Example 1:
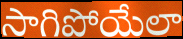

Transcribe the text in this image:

సాగిపోయేలా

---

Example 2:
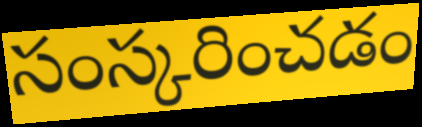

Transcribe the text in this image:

సంస్కరించడం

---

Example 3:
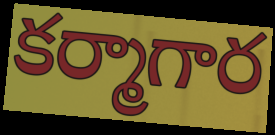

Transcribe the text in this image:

కర్మాగార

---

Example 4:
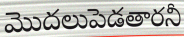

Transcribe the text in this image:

మొదలుపెడతారనీ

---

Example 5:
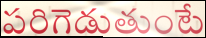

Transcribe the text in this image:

పరిగెడుతుంటే